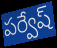
పర్వేష్